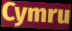
Cymru